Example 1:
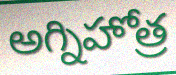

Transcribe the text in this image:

అగ్నిహోత్ర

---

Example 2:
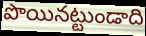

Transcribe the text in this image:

పొయినట్టుండాది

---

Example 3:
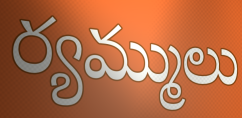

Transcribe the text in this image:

ర్యమ్ములు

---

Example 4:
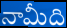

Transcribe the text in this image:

నామీది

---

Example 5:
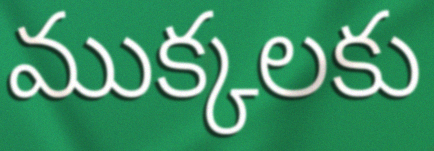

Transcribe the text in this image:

ముక్కలకు